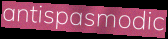
antispasmodic